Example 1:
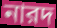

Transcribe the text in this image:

নারদ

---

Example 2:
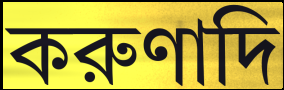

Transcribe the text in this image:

করুণাদি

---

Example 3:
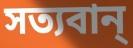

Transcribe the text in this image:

সত্যবান্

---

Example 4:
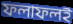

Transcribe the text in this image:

ফলাফলই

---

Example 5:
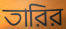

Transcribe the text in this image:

তারির